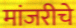
मांजरीचे